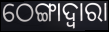
ଠେଙ୍ଗାଦ୍ୱାରା